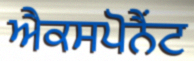
ਐਕਸਪੋਨੈਂਟ